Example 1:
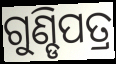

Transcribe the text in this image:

ଗୁଣ୍ଡିପତ୍ର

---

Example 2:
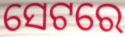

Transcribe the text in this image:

ସେଟରେ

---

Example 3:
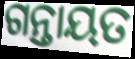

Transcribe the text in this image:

ଗନ୍ତାୟତ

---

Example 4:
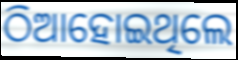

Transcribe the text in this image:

ଠିଆହୋଇଥିଲେ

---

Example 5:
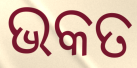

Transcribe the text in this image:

ଭକତ